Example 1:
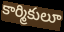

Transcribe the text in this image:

కార్మికులూ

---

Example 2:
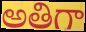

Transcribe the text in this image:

అతిగా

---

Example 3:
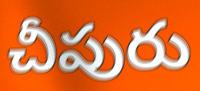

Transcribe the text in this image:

చీపురు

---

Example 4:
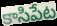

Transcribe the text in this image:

కాసిపేట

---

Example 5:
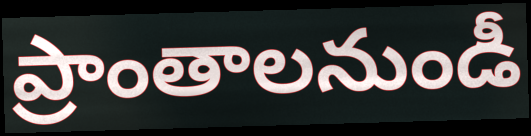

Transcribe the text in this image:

ప్రాంతాలనుండీ